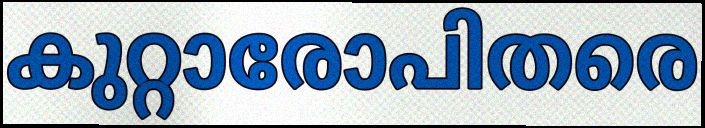
കുറ്റാരോപിതരെ